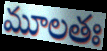
మూలతః